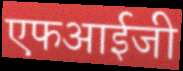
एफआईजी